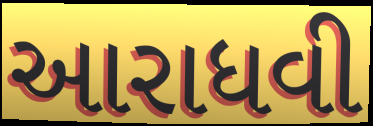
આરાધવી